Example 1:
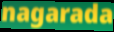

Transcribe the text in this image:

nagarada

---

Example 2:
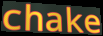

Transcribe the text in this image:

chake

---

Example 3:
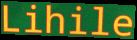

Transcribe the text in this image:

Lihile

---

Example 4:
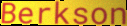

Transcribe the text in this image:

Berkson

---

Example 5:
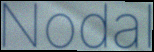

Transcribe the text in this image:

Nodal